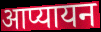
आप्यायन